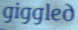
giggled